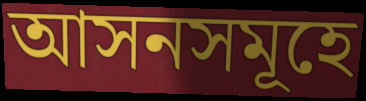
আসনসমূহে